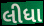
લીધા